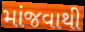
માંજવાથી